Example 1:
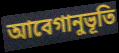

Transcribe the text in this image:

আবেগানুভূতি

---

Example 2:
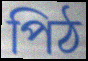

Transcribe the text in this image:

পিঠ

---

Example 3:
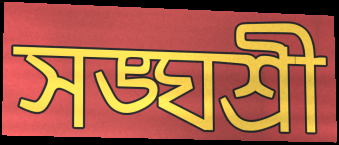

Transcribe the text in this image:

সঙ্ঘশ্রী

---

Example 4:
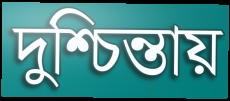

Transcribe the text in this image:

দুশ্চিন্তায়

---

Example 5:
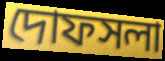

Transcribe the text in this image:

দোফসলা